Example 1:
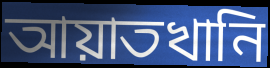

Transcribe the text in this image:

আয়াতখানি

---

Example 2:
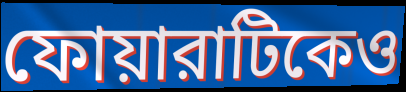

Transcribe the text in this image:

ফোয়ারাটিকেও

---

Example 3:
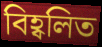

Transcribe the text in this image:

বিহ্বলিত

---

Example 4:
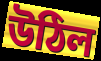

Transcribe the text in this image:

উঠিল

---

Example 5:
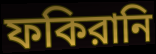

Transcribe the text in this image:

ফকিরানি